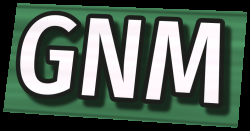
GNM